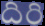
దిరి